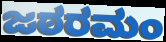
ಜಠರಮಂ